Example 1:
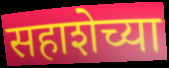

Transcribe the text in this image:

सहाशेच्या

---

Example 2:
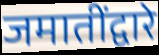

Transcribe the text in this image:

जमातींद्वारे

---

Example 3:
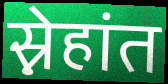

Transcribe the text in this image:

स्नेहांत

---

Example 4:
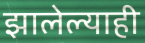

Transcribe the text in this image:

झालेल्याही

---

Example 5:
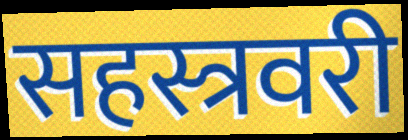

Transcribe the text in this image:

सहस्त्रवरी